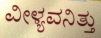
ವೀಳ್ಯವನಿತ್ತು